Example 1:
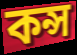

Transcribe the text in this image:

কন্স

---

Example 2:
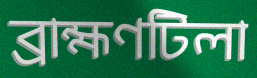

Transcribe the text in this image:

ব্রাহ্মণটিলা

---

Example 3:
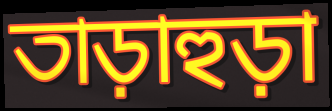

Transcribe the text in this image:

তাড়াহুড়া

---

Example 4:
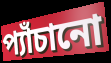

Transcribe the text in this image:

প্যাঁচানো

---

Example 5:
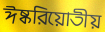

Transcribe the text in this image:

ঈষ্করিয়োতীয়